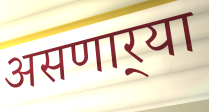
असणार्या